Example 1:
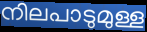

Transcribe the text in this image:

നിലപാടുമുള്ള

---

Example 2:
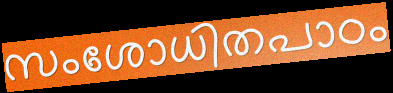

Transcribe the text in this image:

സംശോധിതപാഠം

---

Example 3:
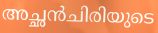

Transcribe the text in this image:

അച്ഛൻചിരിയുടെ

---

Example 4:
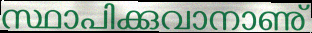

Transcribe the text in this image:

സ്ഥാപിക്കുവാനാണു്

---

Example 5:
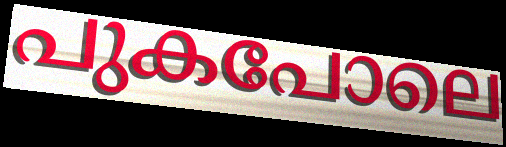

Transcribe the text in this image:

പുകപോലെ